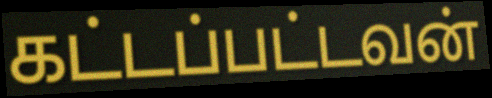
கட்டப்பட்டவன்